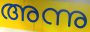
അന്നു